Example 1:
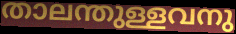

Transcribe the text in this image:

താലന്തുള്ളവനു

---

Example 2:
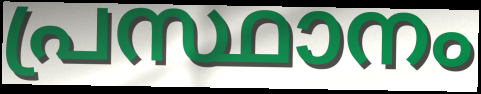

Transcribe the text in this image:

പ്രസ്ഥാനം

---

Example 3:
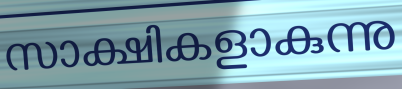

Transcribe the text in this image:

സാക്ഷികളാകുന്നു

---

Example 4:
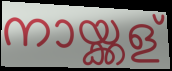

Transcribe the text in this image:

നായ്ക്കള്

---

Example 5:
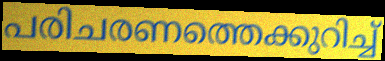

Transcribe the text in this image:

പരിചരണത്തെക്കുറിച്ച്